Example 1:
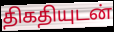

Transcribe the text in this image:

திகதியுடன்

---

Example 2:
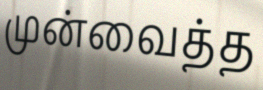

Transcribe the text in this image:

முன்வைத்த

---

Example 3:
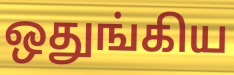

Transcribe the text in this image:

ஒதுங்கிய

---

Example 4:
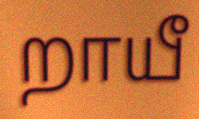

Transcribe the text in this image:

றாயீ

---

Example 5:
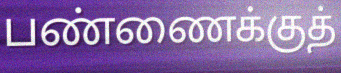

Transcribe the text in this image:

பண்ணைக்குத்